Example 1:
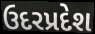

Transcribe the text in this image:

ઉદરપ્રદેશ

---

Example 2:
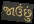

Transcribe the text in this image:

જાઉંછું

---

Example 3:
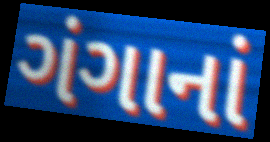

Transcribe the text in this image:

ગંગાનાં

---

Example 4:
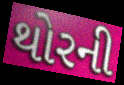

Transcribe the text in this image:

થોરની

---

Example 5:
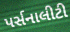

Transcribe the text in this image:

પર્સનાલીટી